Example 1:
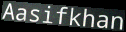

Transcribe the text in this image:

Aasifkhan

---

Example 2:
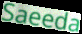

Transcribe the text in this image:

Saeeda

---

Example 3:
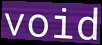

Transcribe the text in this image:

void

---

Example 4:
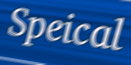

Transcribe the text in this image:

Speical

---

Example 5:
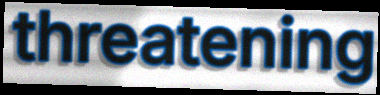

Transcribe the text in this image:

threatening